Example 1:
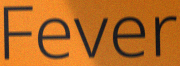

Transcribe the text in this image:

Fever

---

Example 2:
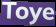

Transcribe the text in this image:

Toye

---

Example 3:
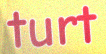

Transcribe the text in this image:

turt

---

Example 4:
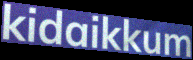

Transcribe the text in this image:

kidaikkum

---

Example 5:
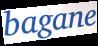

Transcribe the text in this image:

bagane